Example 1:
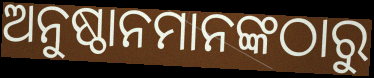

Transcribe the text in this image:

ଅନୁଷ୍ଠାନମାନଙ୍କଠାରୁ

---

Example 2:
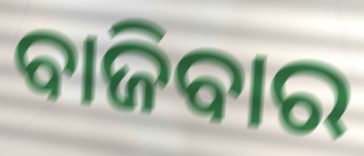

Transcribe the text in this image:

ବାଜିବାର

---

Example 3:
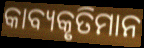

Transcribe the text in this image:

କାବ୍ୟକୃତିମାନ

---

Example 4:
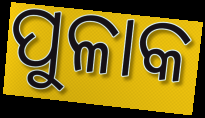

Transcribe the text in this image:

ପୁଳାକ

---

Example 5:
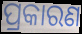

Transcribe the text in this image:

ପ୍ରକାରଣ